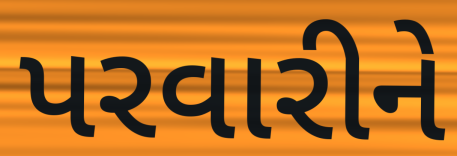
પરવારીને